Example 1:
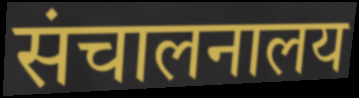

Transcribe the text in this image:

संचालनालय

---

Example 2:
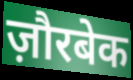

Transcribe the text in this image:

ज़ौरबेक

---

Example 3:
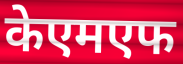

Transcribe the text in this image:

केएमएफ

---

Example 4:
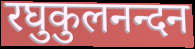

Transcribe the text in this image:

रघुकुलनन्दन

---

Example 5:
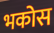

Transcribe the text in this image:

भकोस